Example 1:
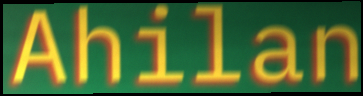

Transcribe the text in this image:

Ahilan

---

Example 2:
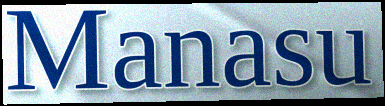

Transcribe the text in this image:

Manasu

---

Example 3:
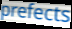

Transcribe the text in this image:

prefects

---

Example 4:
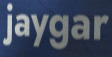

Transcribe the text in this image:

jaygar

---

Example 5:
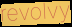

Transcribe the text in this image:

revolvy